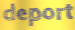
deport